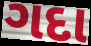
ગદા